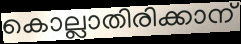
കൊല്ലാതിരിക്കാന്